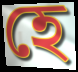
হে